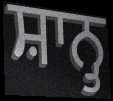
ਸ਼ਾਨ੍ਤ